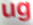
ug